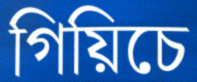
গিয়িচে